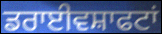
ਡਰਾਈਵਸ਼ਾਫਟਾਂ